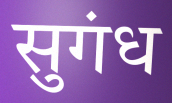
सुगंध